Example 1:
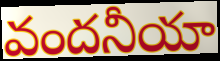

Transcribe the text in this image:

వందనీయా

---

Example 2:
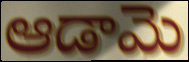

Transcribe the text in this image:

ఆడామె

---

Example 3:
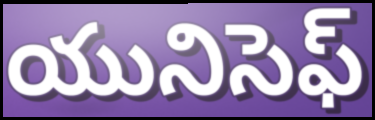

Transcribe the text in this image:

యునిసెఫ్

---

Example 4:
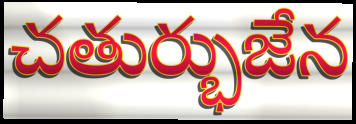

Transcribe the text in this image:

చతుర్భుజేన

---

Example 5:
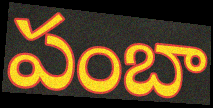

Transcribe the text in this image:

పంబా